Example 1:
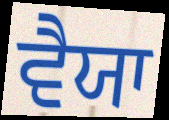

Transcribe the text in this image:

ਵੈਯਾ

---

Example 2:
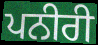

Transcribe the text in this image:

ਪਨੀਰੀ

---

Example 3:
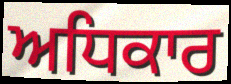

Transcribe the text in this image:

ਅਧਿਕਾਰ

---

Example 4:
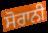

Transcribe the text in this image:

ਸੋਰਾਨੀ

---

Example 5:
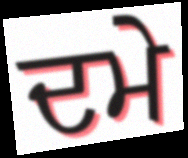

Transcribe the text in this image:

ਦਮੇ